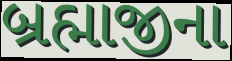
બ્રહ્માજીના